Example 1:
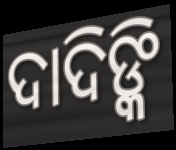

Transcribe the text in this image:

ଦାଦିଙ୍କି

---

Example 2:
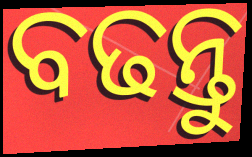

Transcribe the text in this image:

ବଢନ୍ତୁ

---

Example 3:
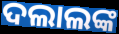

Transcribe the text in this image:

ଦଲାଲଙ୍କ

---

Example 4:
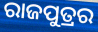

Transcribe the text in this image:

ରାଜପୁତ୍ରର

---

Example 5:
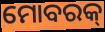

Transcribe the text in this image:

ମୋବରକ୍